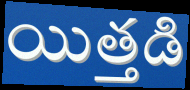
యిత్తడి